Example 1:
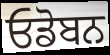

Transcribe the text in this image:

ਓਡੋਬਨ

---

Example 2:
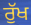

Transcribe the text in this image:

ਰੁੱਖ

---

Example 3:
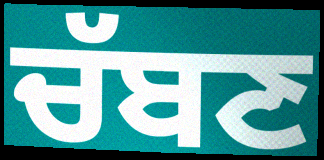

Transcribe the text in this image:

ਚੱਬਣ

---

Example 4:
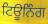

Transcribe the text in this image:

ਟਿਊਨਿੰਗ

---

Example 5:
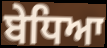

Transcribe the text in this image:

ਬੇਧਿਆ